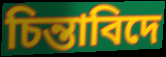
চিন্তাবিদে